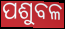
ପଶୁବଳ